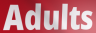
Adults